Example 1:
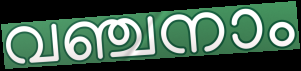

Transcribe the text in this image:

വഞ്ചനാം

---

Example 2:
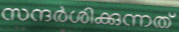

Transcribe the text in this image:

സന്ദർശിക്കുന്നത്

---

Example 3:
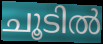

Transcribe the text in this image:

ചൂടിൽ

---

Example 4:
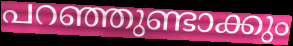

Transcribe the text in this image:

പറഞ്ഞുണ്ടാക്കും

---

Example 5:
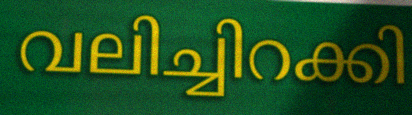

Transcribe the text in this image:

വലിച്ചിറക്കി